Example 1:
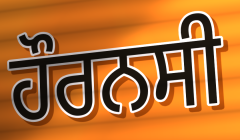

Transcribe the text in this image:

ਹੌਰਨਸੀ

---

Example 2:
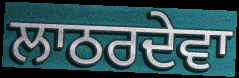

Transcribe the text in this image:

ਲਾਠਰਦੇਵਾ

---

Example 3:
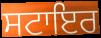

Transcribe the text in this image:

ਸਟਾਇਰ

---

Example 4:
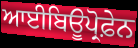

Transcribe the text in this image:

ਆਈਬਿਊਪ੍ਰੋਫ਼ੇਨ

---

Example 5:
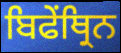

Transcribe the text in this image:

ਬਿਫੇਂਥ੍ਰਿਨ